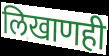
लिखाणही